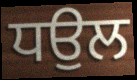
ਧਉਲ